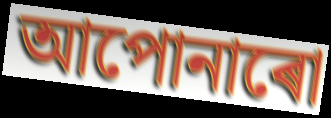
আপোনাৰো